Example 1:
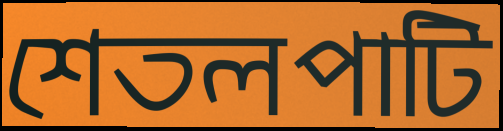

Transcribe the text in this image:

শেতলপাটি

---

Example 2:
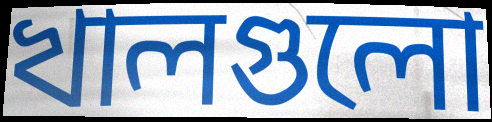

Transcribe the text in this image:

খালগুলো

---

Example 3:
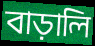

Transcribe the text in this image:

বাড়ালি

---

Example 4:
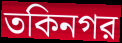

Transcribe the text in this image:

তকিনগর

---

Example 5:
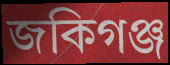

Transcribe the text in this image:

জকিগঞ্জ